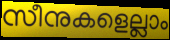
സീനുകളെല്ലാം